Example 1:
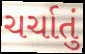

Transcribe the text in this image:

ચર્ચાતું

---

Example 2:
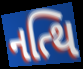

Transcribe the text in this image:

નત્થિ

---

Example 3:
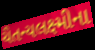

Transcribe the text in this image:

ચૈતન્યલક્ષ્મીના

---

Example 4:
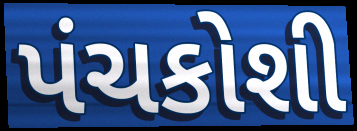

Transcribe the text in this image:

પંચકોશી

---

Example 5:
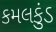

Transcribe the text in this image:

કમલકુંડ